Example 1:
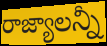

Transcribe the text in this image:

రాజ్యాలన్నీ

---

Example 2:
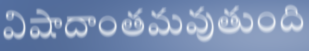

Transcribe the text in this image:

విషాదాంతమవుతుంది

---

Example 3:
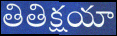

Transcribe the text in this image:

తితిక్షయా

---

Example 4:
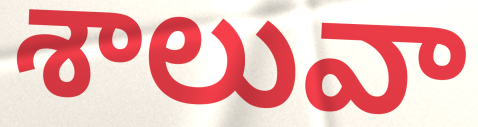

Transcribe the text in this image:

శాలువా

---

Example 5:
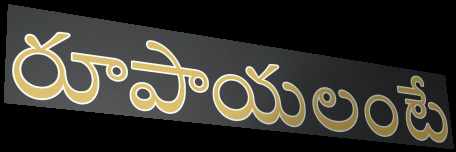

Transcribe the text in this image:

రూపాయలంటే